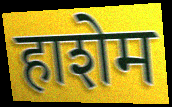
हाशेम